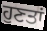
ਹੁਣਤਾਂ